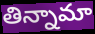
తిన్నామా